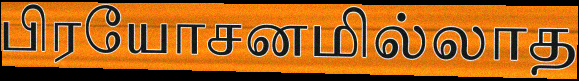
பிரயோசனமில்லாத